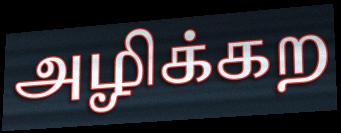
அழிக்கற